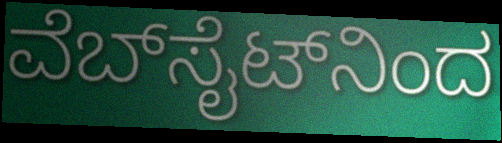
ವೆಬ್‍ಸೈಟ್‍ನಿಂದ